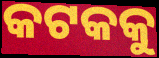
କଟକକୁ